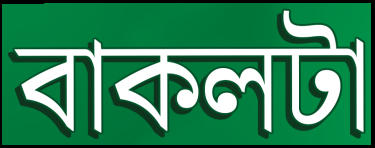
বাকলটা